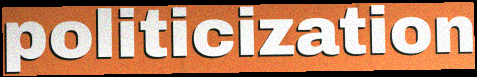
politicization